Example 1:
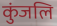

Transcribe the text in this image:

कुंजलि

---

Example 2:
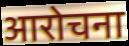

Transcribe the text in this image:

आरोचना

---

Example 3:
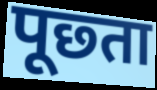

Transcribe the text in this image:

पूछ्ता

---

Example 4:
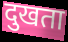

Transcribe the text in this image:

दुखता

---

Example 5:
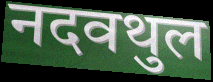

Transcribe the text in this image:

नदवथुल